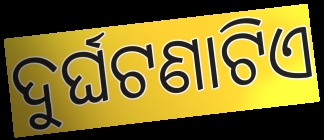
ଦୁର୍ଘଟଣାଟିଏ